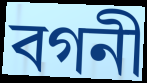
বগনী